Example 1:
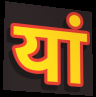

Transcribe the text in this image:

यां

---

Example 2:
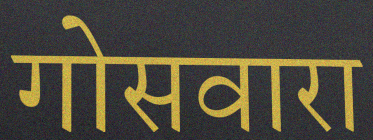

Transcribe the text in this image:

गोसवारा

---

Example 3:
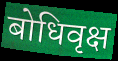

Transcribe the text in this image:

बोधिवृक्ष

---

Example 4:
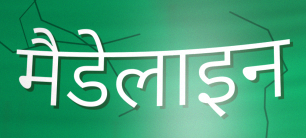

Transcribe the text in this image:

मैडेलाइन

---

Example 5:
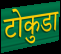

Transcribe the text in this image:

टोकुडा